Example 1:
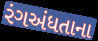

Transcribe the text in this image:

રંગઅંધતાના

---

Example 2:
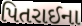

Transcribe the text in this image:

પિતરાઈના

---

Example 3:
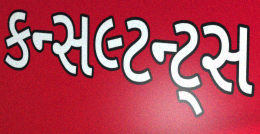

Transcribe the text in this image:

કન્સલ્ટન્ટ્સ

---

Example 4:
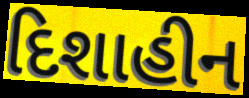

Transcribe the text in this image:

દિશાહીન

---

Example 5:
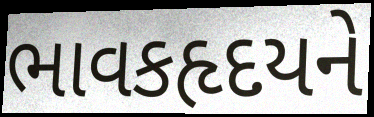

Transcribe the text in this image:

ભાવકહૃદયને